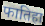
फातिहा